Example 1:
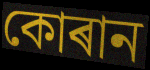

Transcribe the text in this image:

কোৰান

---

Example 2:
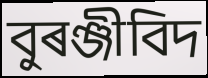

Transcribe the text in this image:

বুৰঞ্জীবিদ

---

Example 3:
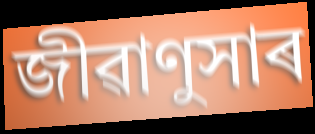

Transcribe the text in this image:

জীৱাণুসাৰ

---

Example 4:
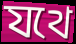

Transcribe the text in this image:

যথে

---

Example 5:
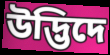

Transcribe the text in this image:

উদ্ভিদে